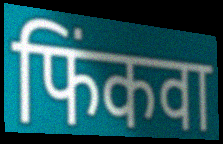
फिंकवा